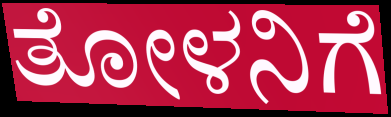
ತೋಳನಿಗೆ